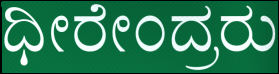
ಧೀರೇಂದ್ರರು